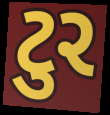
ટુર